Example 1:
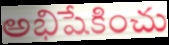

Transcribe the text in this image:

అభిషేకించు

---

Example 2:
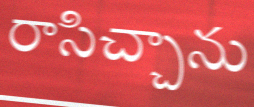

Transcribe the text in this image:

రాసిచ్చాను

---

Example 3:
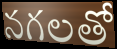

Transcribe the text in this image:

నగలతో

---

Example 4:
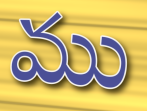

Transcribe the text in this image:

ము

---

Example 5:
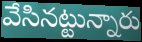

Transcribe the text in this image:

వేసినట్టున్నారు